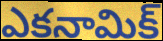
ఎకనామిక్